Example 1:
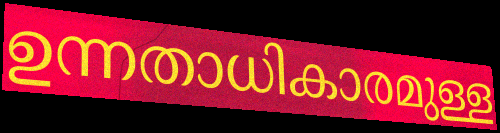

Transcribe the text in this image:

ഉന്നതാധികാരമുള്ള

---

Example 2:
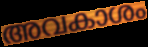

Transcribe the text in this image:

അവകാശം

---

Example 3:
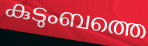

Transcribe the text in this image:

കുടുംബത്തെ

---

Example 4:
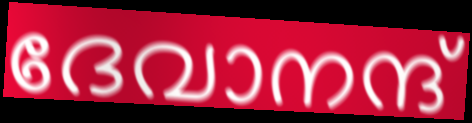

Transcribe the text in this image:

ദേവാനന്ദ്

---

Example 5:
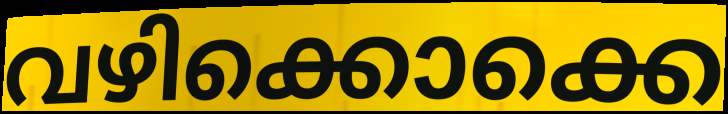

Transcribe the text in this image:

വഴിക്കൊക്കെ